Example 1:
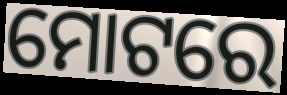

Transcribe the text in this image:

ମୋଟରେ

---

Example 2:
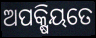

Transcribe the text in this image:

ଅପକ୍ଷିୟତେ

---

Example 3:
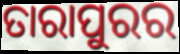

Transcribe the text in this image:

ତାରାପୁରର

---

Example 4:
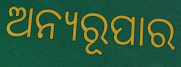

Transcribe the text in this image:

ଅନ୍ୟରୂପାର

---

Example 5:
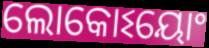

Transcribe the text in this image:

ଲୋକୋଽୟୋଂ